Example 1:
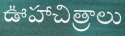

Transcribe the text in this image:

ఊహాచిత్రాలు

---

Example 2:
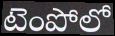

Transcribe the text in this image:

టెంపోలో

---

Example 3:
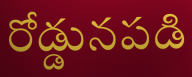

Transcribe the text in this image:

రోడ్డునపడి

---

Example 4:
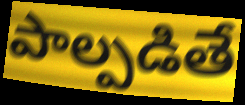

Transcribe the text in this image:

పాల్పడితే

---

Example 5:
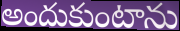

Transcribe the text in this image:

అందుకుంటాను